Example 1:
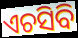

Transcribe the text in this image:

ଏଚସିବି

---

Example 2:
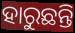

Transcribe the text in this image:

ହାରୁଛନ୍ତି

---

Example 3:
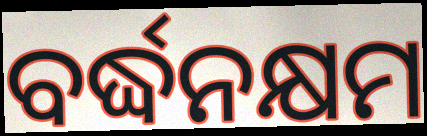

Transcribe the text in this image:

ବର୍ଦ୍ଧନକ୍ଷମ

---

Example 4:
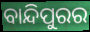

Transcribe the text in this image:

ବାନ୍ଦିପୁରର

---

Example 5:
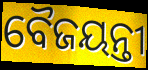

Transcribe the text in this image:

ବୈଜୟନ୍ତୀ